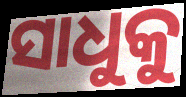
ସାଧୁକୁ